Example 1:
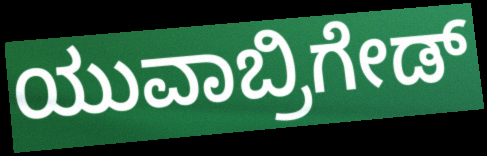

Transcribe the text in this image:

ಯುವಾಬ್ರಿಗೇಡ್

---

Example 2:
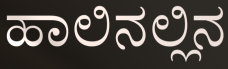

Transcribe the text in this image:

ಹಾಲಿನಲ್ಲಿನ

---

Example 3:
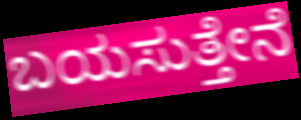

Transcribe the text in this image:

ಬಯಸುತ್ತೇನೆ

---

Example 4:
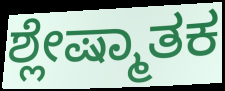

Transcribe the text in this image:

ಶ್ಲೇಷ್ಮಾತಕ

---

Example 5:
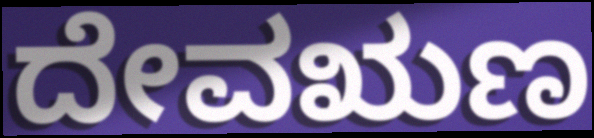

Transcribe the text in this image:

ದೇವಋಣ